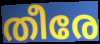
തീരേ